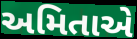
અમિતાએ